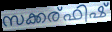
സക്കര്ഫിഷ്